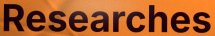
Researches